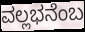
ವಲ್ಲಭನೆಂಬ